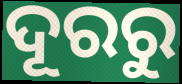
ଦୂରରୁ